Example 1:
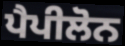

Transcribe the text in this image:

ਪੈਪੀਲੋਨ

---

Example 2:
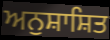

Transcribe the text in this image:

ਅਨੁਸ਼ਾਸ਼ਿਤ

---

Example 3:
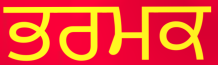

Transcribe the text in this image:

ਭਰਮਕ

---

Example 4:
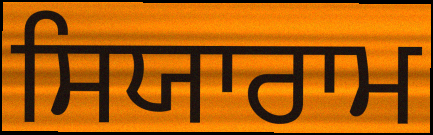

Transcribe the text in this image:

ਸਿਯਾਰਾਮ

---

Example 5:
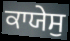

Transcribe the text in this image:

ਕਾਯੇਸੁ